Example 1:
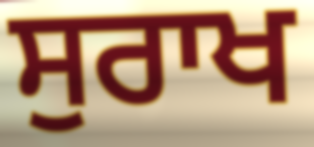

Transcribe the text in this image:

ਸੁਰਾਖ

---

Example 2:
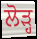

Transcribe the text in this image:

ਲੋੜ੍ਹ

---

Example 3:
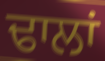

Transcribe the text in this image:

ਢਾਲਾਂ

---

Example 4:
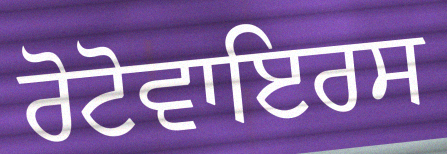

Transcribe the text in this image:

ਰੋਟੋਵਾਇਰਸ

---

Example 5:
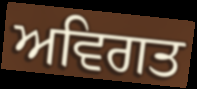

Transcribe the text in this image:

ਅਵਿਗਤ